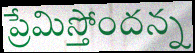
ప్రేమిస్తోందన్న